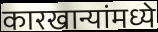
कारखान्यांमध्ये